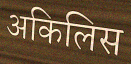
अकिलिस